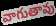
వాగుతావు